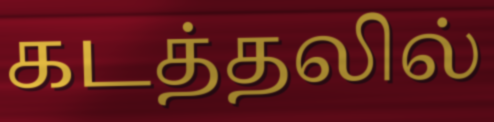
கடத்தலில்